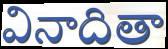
వినాదితా